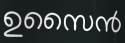
ഉസൈൻ